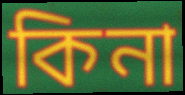
কিনা